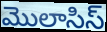
మొలాసిస్